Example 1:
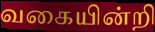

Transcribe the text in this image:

வகையின்றி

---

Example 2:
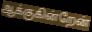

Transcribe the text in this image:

ஆக்குகின்றேன்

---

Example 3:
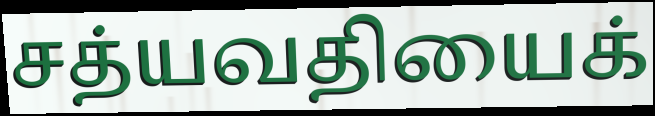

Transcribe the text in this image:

சத்யவதியைக்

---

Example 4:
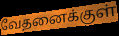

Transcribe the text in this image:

வேதனைக்குள்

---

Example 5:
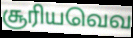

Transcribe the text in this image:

சூரியவெவ